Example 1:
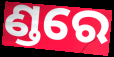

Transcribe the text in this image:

ଣ୍ଡରେ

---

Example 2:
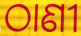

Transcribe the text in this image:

ଠାଣୀ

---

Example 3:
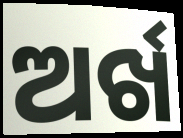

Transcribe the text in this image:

ଅର୍ଖ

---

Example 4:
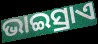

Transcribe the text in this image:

ଭାଇସ୍ରାଏ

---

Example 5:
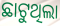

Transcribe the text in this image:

ଛାଟୁଥିଲା